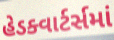
હેડક્વાર્ટર્સમાં